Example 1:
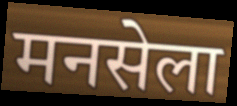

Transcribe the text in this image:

मनसेला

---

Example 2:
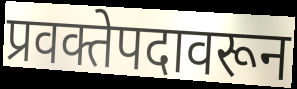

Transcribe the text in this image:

प्रवक्तेपदावरून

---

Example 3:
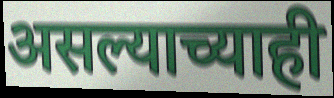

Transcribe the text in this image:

असल्याच्याही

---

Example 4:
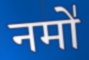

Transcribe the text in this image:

नमो॑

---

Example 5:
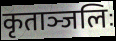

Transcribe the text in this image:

कृताञ्जलिः